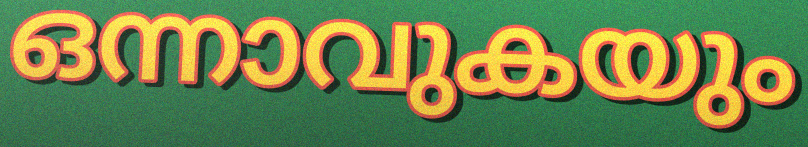
ഒന്നാവുകയും